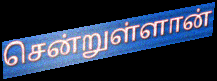
சென்றுள்ளான்